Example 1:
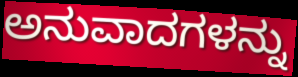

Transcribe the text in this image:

ಅನುವಾದಗಳನ್ನು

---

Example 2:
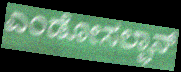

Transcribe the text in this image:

ಎಂಡೋಸಲ್ಫಾನ್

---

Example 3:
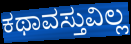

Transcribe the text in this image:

ಕಥಾವಸ್ತುವಿಲ್ಲ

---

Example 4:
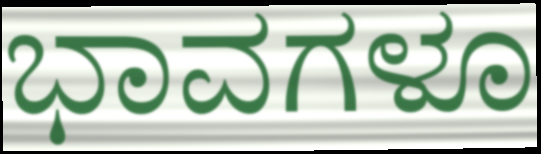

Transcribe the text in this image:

ಭಾವಗಳೂ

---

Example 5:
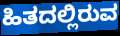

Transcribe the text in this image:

ಹಿತದಲ್ಲಿರುವ